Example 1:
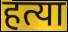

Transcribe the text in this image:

हत्या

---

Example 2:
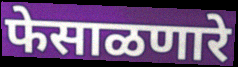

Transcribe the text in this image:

फेसाळणारे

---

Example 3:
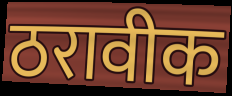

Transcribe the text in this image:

ठरावीक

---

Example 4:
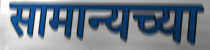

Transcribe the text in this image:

सामान्यच्या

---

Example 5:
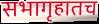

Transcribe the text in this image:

सभागृहातच